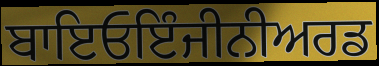
ਬਾਇਓਇੰਜੀਨੀਅਰਡ